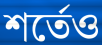
শর্তেও